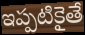
ఇప్పటికైతే